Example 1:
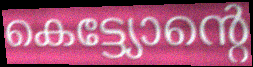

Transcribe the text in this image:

കെട്ട്യോന്റെ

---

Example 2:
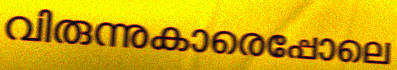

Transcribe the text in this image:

വിരുന്നുകാരെപ്പോലെ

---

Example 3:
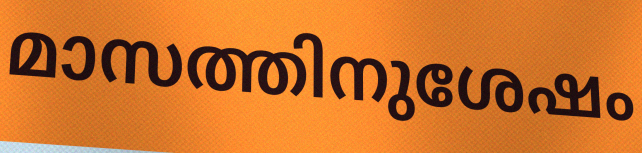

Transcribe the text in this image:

മാസത്തിനുശേഷം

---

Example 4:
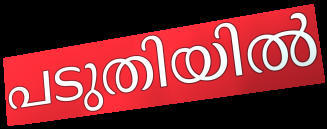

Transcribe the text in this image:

പടുതിയിൽ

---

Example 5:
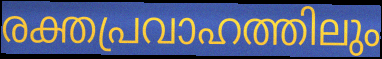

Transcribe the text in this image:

രക്തപ്രവാഹത്തിലും